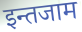
इन्तजाम